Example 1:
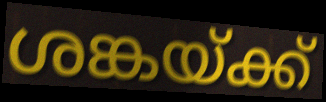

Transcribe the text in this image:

ശങ്കയ്ക്ക്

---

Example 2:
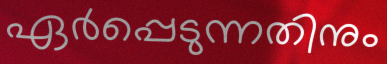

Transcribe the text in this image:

ഏർപ്പെടുന്നതിനും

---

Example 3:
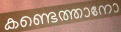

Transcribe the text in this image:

കണ്ടെത്താനോ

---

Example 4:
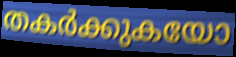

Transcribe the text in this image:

തകർക്കുകയോ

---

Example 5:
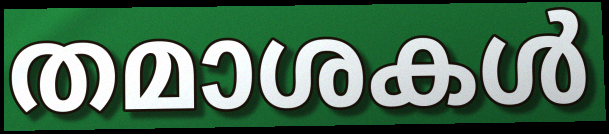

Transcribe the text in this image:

തമാശകൾ